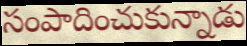
సంపాదించుకున్నాడు